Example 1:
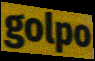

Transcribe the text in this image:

golpo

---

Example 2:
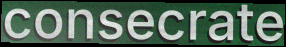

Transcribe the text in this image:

consecrate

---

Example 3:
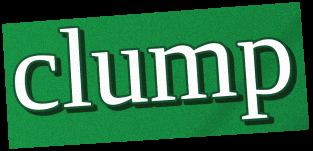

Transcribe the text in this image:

clump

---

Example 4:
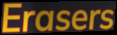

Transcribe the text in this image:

Erasers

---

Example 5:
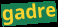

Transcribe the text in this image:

gadre